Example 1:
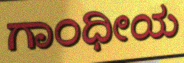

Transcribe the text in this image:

ಗಾಂಧೀಯ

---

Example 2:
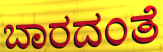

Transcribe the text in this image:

ಬಾರದಂತೆ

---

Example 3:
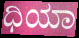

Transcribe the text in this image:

ಧಿಯಾ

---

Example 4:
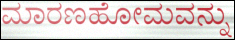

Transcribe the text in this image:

ಮಾರಣಹೋಮವನ್ನು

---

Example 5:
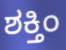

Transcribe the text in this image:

ಶಕ್ತಿಂ